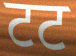
टट